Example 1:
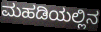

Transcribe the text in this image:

ಮಹಡಿಯಲ್ಲಿನ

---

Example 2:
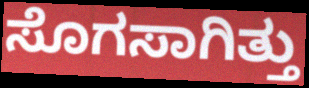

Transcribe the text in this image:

ಸೊಗಸಾಗಿತ್ತು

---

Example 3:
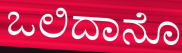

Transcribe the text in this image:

ಒಲಿದಾನೊ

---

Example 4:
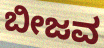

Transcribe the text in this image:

ಬೀಜವ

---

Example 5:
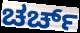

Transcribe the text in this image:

ಚರ್ಚ್